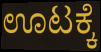
ಊಟಕ್ಕೆ